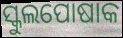
ସ୍କୁଲପୋଷାକ